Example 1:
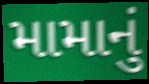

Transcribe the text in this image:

મામાનું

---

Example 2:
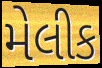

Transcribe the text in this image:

મેલીક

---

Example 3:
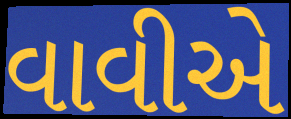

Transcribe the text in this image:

વાવીએ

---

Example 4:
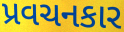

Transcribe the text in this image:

પ્રવચનકાર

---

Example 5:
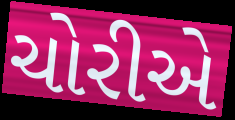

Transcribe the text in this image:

ચોરીએ